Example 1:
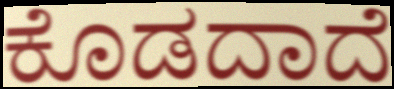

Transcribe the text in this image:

ಕೊಡದಾದೆ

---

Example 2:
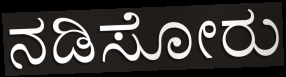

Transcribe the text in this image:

ನಡಿಸೋರು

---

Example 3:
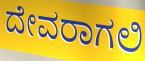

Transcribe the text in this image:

ದೇವರಾಗಲಿ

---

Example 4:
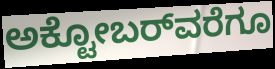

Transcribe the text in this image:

ಅಕ್ಟೋಬರ್‌ವರೆಗೂ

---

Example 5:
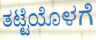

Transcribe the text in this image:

ತಟ್ಟೆಯೊಳಗೆ